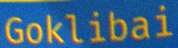
Goklibai